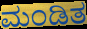
ಮಂಡಿತ